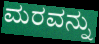
ಮರವನ್ನು